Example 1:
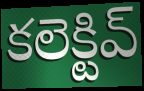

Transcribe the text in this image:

కలెక్టివ్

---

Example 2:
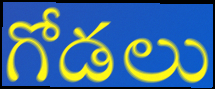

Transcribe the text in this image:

గోడలు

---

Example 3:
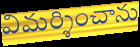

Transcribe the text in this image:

విమర్శించాను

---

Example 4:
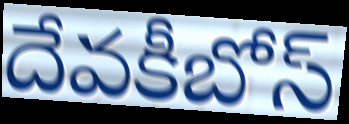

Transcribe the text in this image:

దేవకీబోస్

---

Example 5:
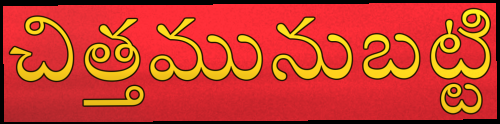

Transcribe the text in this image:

చిత్తమునుబట్టి